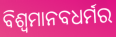
ବିଶ୍ବମାନବଧର୍ମର